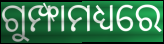
ଗୁମ୍ଫାମଧ୍ୟରେ